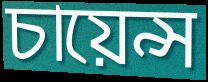
চায়েন্স